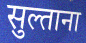
सुल्ताना